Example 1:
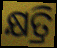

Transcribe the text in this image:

କ୍ଷତ୍ରି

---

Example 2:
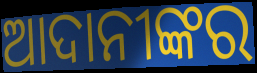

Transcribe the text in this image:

ଆଦାନୀଙ୍କର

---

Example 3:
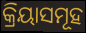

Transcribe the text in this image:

କ୍ରିୟାସମୂହ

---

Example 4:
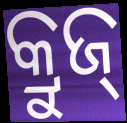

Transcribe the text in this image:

କ୍ରୁଜ୍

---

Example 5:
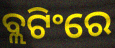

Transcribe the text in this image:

ବ୍ଲଟିଂରେ